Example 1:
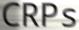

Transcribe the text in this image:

CRPs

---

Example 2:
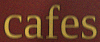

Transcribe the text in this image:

cafes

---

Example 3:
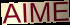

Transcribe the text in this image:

AIME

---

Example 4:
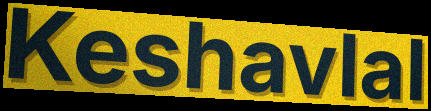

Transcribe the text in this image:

Keshavlal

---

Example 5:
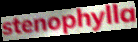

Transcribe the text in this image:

stenophylla